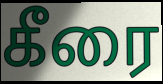
கீரை